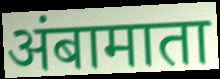
अंबामाता